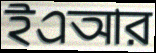
ইএআর